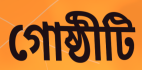
গোষ্ঠীটি